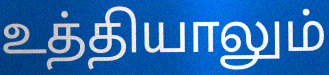
உத்தியாலும்